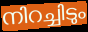
നിറച്ചിടും